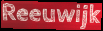
Reeuwijk